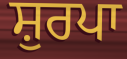
ਸ਼ੁਰਪਾ